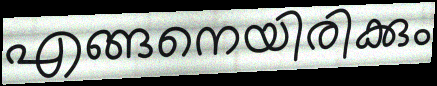
എങ്ങനെയിരിക്കും